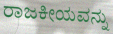
ರಾಜಕೀಯವನ್ನು